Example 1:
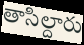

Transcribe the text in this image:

తాసిల్దారు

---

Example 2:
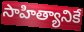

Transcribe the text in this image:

సాహిత్యానికే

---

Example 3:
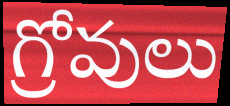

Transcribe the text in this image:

గ్రోవులు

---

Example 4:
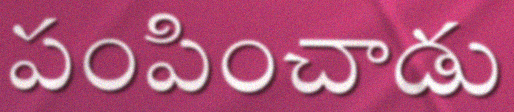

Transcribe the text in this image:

పంపించాడు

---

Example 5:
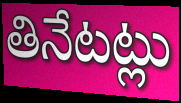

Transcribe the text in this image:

తినేటట్లు